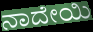
ನಾದೇಯಿ